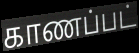
காணப்பட்